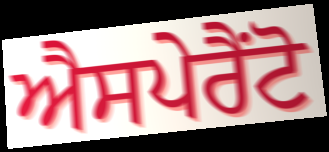
ਐਸਪੇਰੈਂਟੋ